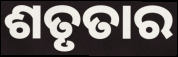
ଶତୃତାର